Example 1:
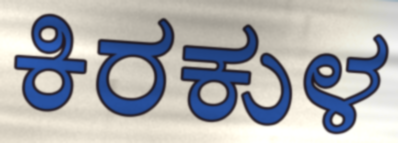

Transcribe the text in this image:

ಕಿರಕುಳ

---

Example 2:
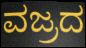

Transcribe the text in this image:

ವಜ್ರದ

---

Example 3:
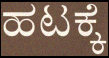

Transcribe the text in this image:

ಹಟಕ್ಕೆ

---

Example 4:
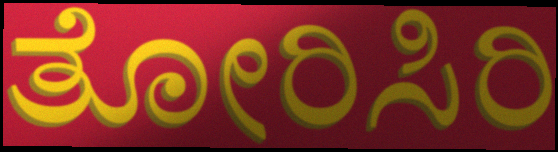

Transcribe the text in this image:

ತೋರಿಸಿರಿ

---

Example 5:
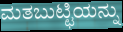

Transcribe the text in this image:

ಮತಬುಟ್ಟಿಯನ್ನು